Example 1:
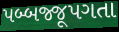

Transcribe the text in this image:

પબ્બજ્જૂપગતા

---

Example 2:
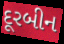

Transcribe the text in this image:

દૂરબીન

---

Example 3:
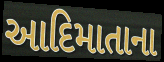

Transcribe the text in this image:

આદિમાતાના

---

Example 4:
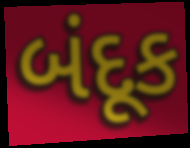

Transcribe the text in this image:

બંદૂક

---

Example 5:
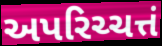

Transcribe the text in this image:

અપરિચ્ચત્તં